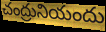
చంద్రునియందు